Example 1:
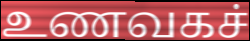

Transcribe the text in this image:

உணவகச்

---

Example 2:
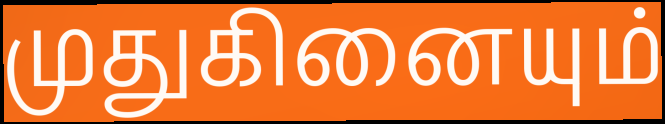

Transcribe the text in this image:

முதுகினையும்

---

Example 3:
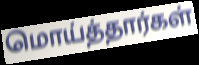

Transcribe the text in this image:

மொய்த்தார்கள்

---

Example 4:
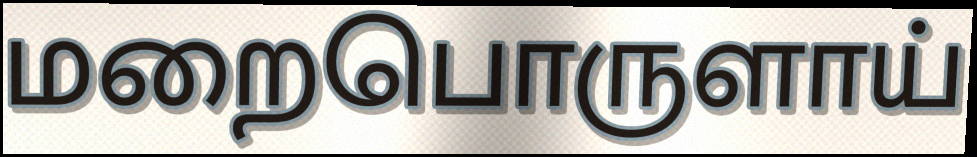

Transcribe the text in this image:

மறைபொருளாய்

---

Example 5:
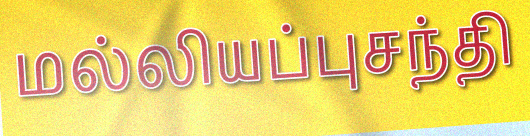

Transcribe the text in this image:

மல்லியப்புசந்தி